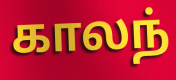
காலந்